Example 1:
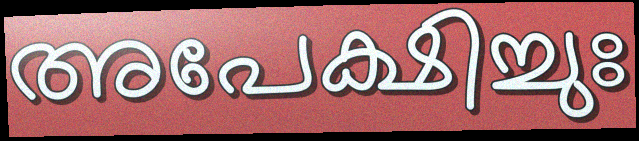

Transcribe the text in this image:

അപേക്ഷിച്ചുഃ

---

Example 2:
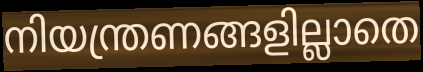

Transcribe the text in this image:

നിയന്ത്രണങ്ങളില്ലാതെ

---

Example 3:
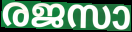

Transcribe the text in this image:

രജസാ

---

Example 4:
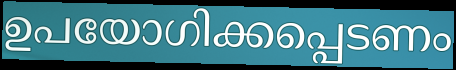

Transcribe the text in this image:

ഉപയോഗിക്കപ്പെടണം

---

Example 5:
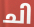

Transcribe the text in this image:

ചി